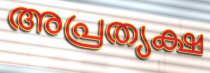
അപ്രത്യക്ഷ